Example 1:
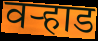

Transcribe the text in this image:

वऱ्हाड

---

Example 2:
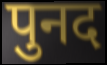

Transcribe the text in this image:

पुनद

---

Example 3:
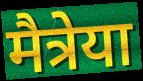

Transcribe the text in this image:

मैत्रेया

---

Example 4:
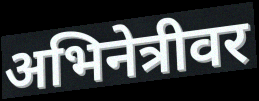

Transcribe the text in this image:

अभिनेत्रीवर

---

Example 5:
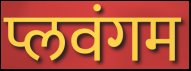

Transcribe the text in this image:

प्लवंगम